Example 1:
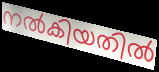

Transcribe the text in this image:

നൽകിയതിൽ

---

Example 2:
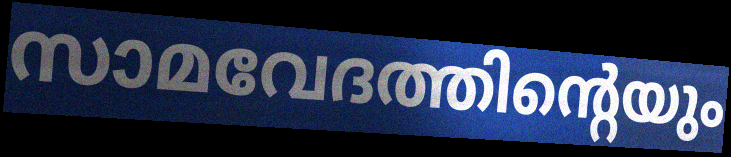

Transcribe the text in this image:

സാമവേദത്തിന്റെയും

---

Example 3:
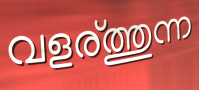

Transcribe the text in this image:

വളര്ത്തുന്ന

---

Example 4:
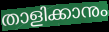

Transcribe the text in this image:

താളിക്കാനും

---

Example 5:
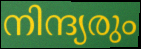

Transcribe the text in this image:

നിന്ദ്യരും